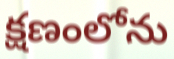
క్షణంలోను